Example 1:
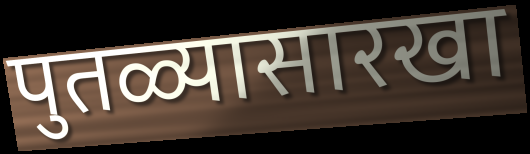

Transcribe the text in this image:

पुतळ्यासारखा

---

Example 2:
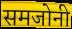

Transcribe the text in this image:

समजोनी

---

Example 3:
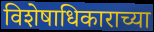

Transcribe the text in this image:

विशेषाधिकाराच्या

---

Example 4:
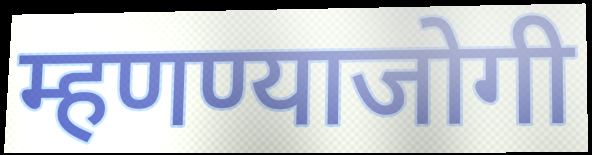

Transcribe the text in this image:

म्हणण्याजोगी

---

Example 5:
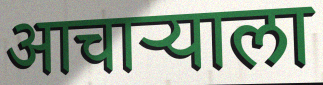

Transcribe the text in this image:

आचाऱ्याला